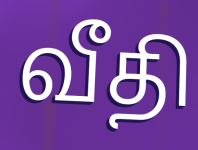
வீதி